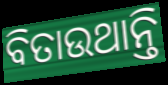
ବିତାଉଥାନ୍ତି